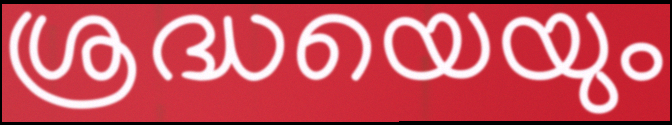
ശ്രദ്ധയെയും